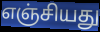
எஞ்சியது